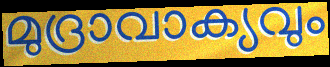
മുദ്രാവാക്യവും